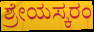
ಶ್ರೇಯಸ್ಕರಂ